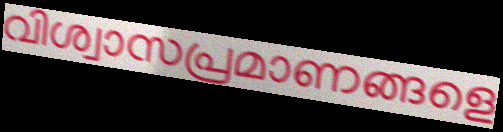
വിശ്വാസപ്രമാണങ്ങളെ